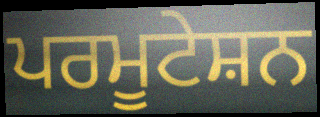
ਪਰਮੂਟੇਸ਼ਨ